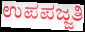
ಉಪಪಜ್ಜತಿ